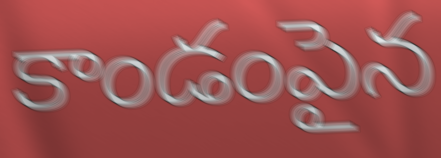
కాండంపైన